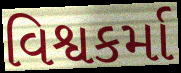
વિશ્વકર્મા